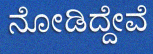
ನೋಡಿದ್ದೇವೆ